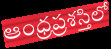
ఆంధ్రప్రశస్తిలో